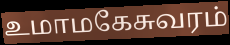
உமாமகேசுவரம்